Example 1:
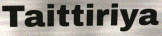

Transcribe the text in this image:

Taittiriya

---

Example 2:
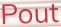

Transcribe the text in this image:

Pout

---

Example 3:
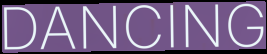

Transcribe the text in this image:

DANCING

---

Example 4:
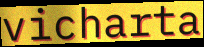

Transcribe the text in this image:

vicharta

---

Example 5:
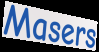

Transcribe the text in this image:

Masers